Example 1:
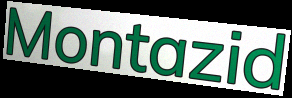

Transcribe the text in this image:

Montazid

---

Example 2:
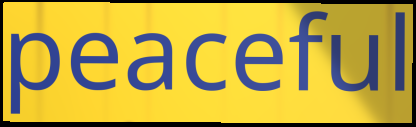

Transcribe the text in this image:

peaceful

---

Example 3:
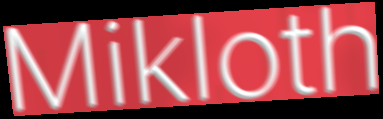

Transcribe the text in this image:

Mikloth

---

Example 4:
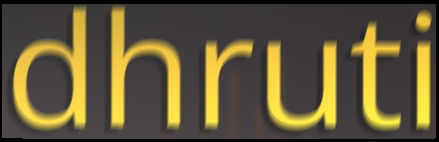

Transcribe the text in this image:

dhruti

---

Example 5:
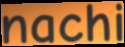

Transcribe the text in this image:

nachi